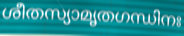
ശീതസ്യാമൃതഗന്ധിനഃ